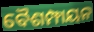
ବୈଶମ୍ଫାୟନ